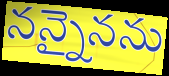
నన్నైనను